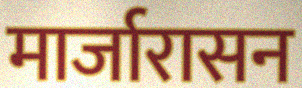
मार्जारासन